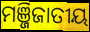
ମଞ୍ଜିଜାତୀୟ